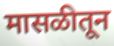
मासळीतून